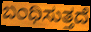
ಬಂಧಿಸುತ್ತದೆ